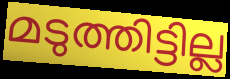
മടുത്തിട്ടില്ല